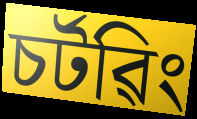
চৰ্টৱিং